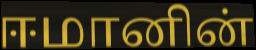
ஈமானின்